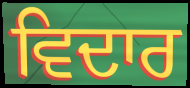
ਵਿਦਾਰ